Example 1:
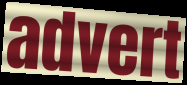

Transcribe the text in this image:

advert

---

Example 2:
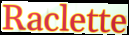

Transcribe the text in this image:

Raclette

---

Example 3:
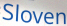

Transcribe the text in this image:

Sloven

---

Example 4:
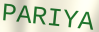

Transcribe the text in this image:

PARIYA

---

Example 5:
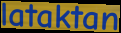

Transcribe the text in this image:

lataktan